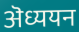
ऄध्ययन